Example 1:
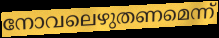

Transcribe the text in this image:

നോവലെഴുതണമെന്ന്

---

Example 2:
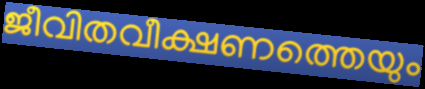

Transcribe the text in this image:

ജീവിതവീക്ഷണത്തെയും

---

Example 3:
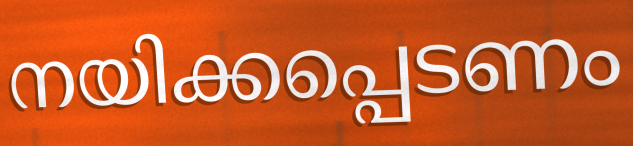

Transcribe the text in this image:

നയിക്കപ്പെടണം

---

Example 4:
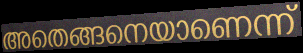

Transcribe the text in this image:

അതെങ്ങനെയാണെന്ന്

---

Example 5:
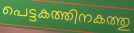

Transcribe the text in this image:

പെട്ടകത്തിനകത്തു